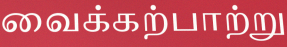
வைக்கற்பாற்று